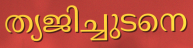
ത്യജിച്ചുടനെ